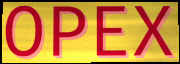
OPEX